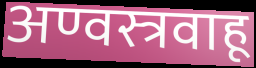
अण्वस्त्रवाहू